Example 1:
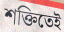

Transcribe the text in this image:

শক্তিতেই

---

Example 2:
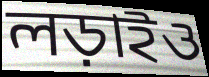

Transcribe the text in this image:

লড়াইও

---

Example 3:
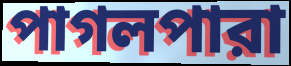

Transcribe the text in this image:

পাগলপারা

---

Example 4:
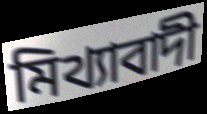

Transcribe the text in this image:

মিথ্যাবাদী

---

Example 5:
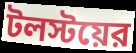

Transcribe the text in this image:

টলস্টয়ের